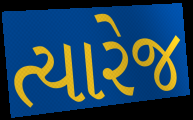
ત્યારેજ